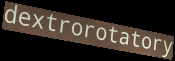
dextrorotatory